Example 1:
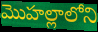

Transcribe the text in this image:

మొహల్లాలోని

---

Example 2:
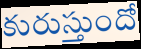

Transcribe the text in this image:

కురుస్తుందో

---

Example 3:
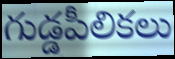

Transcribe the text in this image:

గుడ్డపీలికలు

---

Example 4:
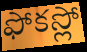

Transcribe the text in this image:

ఫోకస్లో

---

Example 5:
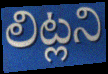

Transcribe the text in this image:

లిట్లని